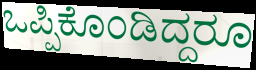
ಒಪ್ಪಿಕೊಂಡಿದ್ದರೂ